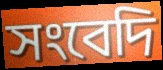
সংবেদি